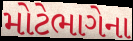
મોટેભાગેના